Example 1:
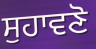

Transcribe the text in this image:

ਸੁਹਾਵਣੋ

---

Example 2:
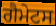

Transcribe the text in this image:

ਗੈਮੇਟਸ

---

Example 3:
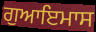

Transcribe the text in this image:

ਗੁਆਇਮਾਸ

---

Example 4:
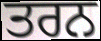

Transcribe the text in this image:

ਤਰਨ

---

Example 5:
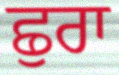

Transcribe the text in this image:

ਛੁਰਾ